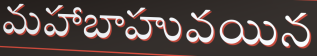
మహాబాహువయిన